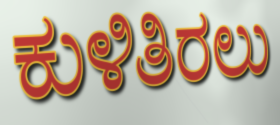
ಕುಳಿತಿರಲು